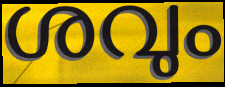
ശവും